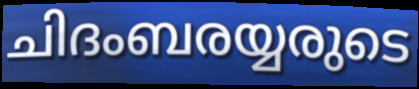
ചിദംബരയ്യരുടെ